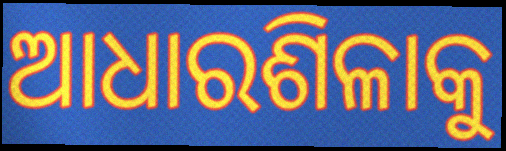
ଆଧାରଶିଳାକୁ